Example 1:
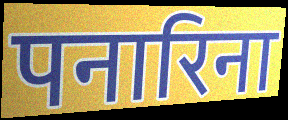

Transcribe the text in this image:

पनारिना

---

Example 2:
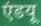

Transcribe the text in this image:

एंडयू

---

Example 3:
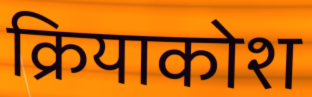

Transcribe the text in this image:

क्रियाकोश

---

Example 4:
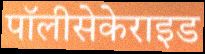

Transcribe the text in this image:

पॉलीसेकेराइड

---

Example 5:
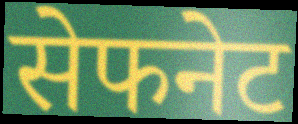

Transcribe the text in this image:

सेफनेट